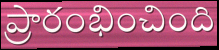
ప్రారంభించింది